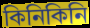
কিনিকিনি